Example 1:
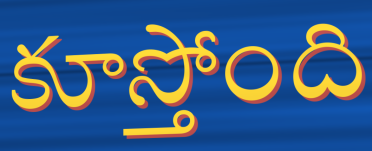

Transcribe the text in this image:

కూస్తోంది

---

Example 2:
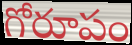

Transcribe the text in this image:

గోరూపం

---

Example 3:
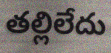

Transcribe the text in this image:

తల్లిలేదు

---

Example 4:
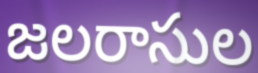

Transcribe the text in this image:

జలరాసుల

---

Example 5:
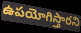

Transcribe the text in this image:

ఉపయోగిస్తారని